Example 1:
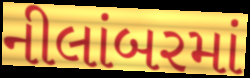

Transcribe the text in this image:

નીલાંબરમાં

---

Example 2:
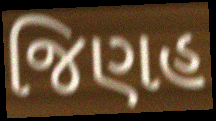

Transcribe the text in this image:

જિણહ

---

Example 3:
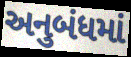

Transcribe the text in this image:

અનુબંધમાં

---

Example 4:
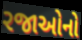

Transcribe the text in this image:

રજાઓનો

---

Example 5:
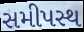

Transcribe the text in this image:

સમીપસ્થ